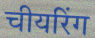
चीयरिंग